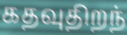
கதவுதிறந்